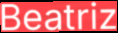
Beatriz